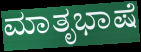
ಮಾತೃಭಾಷೆ